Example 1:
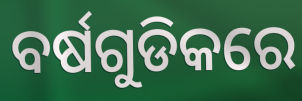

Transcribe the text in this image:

ବର୍ଷଗୁଡିକରେ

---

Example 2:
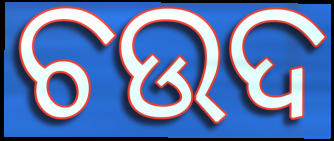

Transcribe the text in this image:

ଚଉଦ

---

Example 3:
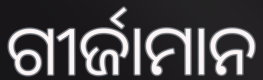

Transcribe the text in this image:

ଗୀର୍ଜାମାନ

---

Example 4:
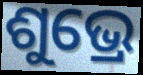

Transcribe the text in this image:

ଶୁଭ୍ରେ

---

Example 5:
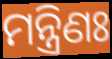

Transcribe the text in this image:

ମନ୍ତ୍ରିଣଃ